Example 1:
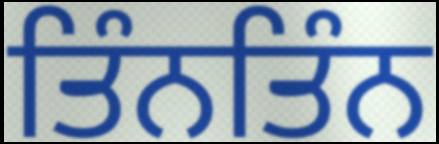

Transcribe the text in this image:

ਤਿੰਨਤਿੰਨ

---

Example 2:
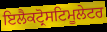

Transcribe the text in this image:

ਇਲੈਕਟ੍ਰੋਸਟਿਮੂਲੇਟਰ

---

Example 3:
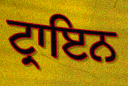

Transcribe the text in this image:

ਟ੍ਰਾਇਨ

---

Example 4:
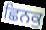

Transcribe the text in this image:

ਛਿਨਕੁ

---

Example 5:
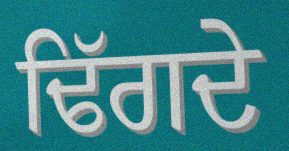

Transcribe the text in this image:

ਢਿੱਗਦੇ